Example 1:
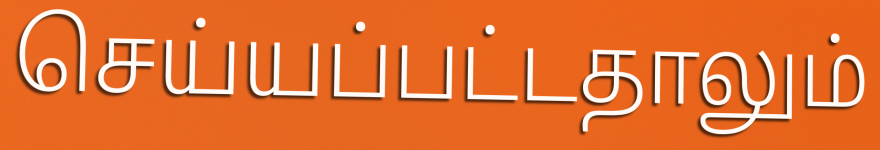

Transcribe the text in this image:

செய்யப்பட்டதாலும்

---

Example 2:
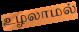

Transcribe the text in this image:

உழலாமல்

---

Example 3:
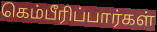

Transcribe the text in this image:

கெம்பீரிப்பார்கள்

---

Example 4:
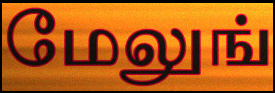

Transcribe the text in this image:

மேலுங்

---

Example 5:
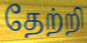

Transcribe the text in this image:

தேற்றி